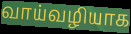
வாய்வழியாக